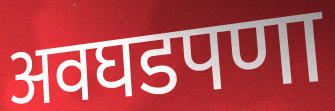
अवघडपणा